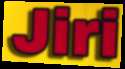
Jiri